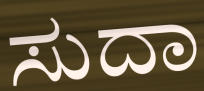
ಸುದಾ